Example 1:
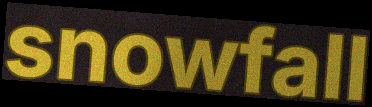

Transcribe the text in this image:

snowfall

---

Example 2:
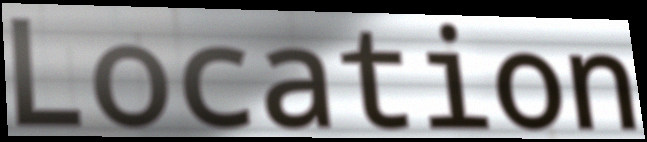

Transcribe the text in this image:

Location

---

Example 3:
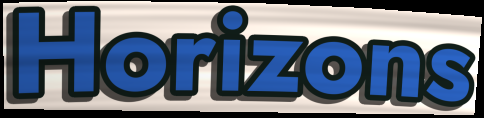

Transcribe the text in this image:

Horizons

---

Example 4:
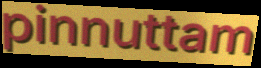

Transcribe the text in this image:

pinnuttam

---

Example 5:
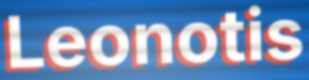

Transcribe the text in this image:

Leonotis